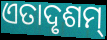
ଏତାଦୃଶମ୍